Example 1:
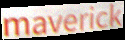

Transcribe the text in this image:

maverick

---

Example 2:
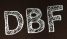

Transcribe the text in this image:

DBF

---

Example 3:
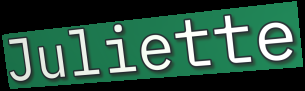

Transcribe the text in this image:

Juliette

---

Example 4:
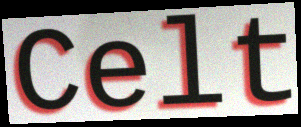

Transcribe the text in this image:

Celt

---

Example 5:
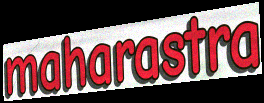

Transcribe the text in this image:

maharastra